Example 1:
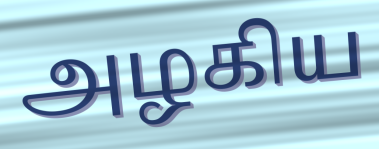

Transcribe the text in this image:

அழகிய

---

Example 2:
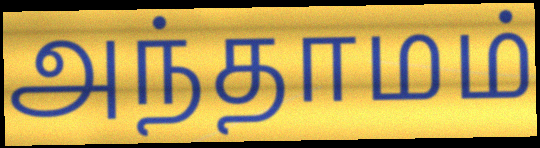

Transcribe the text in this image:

அந்தாமம்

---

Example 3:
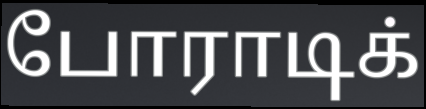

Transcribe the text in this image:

போராடிக்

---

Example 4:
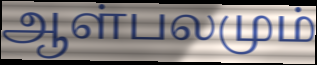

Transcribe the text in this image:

ஆள்பலமும்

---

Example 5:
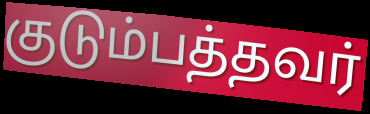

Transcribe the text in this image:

குடும்பத்தவர்